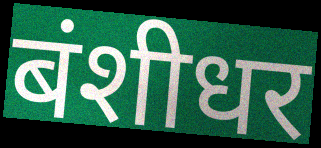
बंशीधर